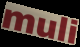
muli